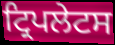
ਟ੍ਰਿਪਲੇਟਸ